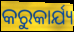
କରୁକାର୍ଯ୍ୟ